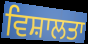
ਵਿਸ਼ਾਲਤਾ